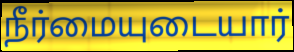
நீர்மையுடையார்